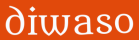
diwaso